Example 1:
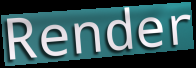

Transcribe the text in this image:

Render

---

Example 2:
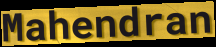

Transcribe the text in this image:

Mahendran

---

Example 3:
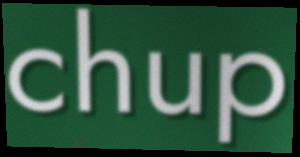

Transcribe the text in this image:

chup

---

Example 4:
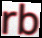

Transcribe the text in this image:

rb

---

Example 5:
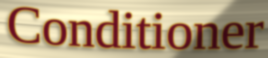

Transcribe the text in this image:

Conditioner